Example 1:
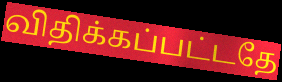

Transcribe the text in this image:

விதிக்கப்பட்டதே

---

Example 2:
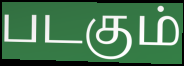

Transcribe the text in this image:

படகும்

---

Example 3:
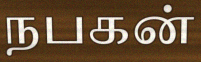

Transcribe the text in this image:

நபகன்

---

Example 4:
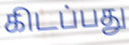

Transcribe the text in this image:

கிடப்பது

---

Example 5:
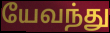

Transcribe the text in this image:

யேவந்து